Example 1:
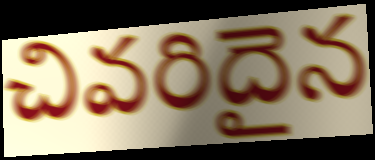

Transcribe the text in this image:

చివరిదైన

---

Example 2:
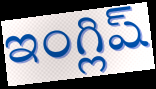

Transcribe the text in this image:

ఇంగ్లిష్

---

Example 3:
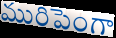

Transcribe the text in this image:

మురిపెంగా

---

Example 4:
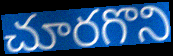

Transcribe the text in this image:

చూరగొని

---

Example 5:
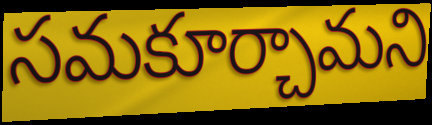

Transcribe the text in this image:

సమకూర్చామని